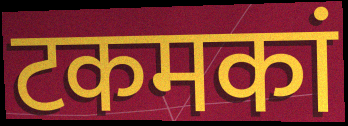
टकमकां